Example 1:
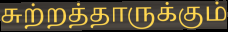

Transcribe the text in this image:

சுற்றத்தாருக்கும்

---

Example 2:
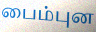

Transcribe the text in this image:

பைம்புன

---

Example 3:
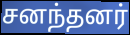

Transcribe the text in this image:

சனந்தனர்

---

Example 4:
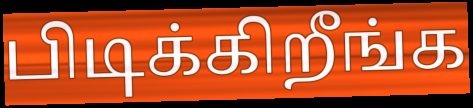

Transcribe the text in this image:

பிடிக்கிறீங்க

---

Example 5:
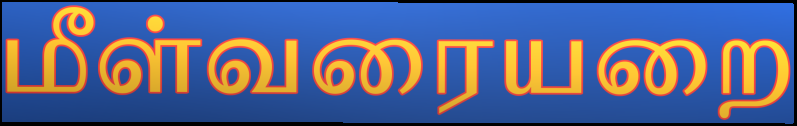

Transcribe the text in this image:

மீள்வரையறை